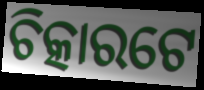
ଚିତ୍କାରଟେ